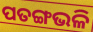
ପତଙ୍ଗଭଳି